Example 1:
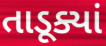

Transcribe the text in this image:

તાડૂક્યાં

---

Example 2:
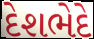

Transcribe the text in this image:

દેશભેદે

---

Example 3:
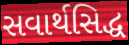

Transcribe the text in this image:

સવાર્થસિદ્ધ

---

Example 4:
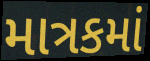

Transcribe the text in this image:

માત્રકમાં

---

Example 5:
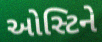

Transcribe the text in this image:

ઓસ્ટિને